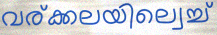
വര്ക്കലയില്വെച്ച്